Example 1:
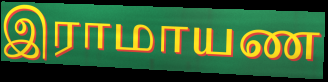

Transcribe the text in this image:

இராமாயண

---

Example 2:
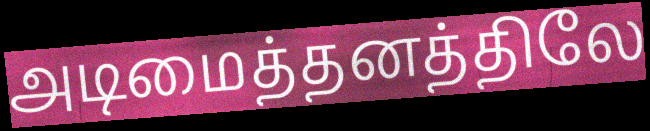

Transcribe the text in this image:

அடிமைத்தனத்திலே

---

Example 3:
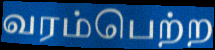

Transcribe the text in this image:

வரம்பெற்ற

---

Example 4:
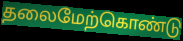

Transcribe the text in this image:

தலைமேற்கொண்டு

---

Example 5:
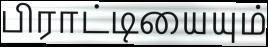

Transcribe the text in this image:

பிராட்டியையும்